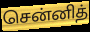
சென்னித்